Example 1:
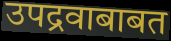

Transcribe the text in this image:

उपद्रवाबाबत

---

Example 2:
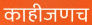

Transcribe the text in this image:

काहीजणच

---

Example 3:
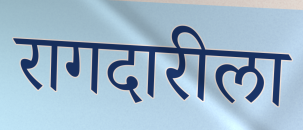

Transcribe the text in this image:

रागदारीला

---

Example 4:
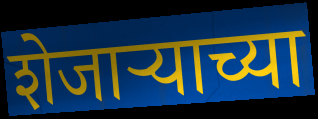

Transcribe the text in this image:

शेजार्‍याच्या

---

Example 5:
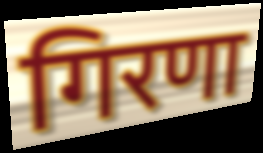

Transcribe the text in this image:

गिरणा